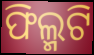
ଫିଲ୍ମଟି